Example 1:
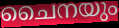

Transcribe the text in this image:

ചൈനയും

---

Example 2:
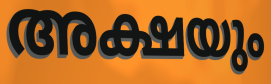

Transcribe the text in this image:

അക്ഷയും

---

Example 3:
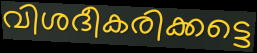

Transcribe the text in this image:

വിശദീകരിക്കട്ടെ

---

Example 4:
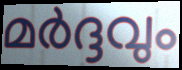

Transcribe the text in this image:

മർദ്ദവും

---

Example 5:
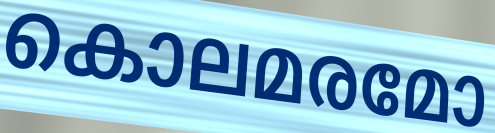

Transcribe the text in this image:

കൊലമരമോ